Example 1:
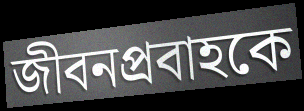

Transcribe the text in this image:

জীবনপ্রবাহকে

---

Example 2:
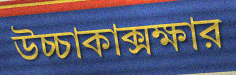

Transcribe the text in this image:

উচ্চাকাক্সক্ষার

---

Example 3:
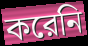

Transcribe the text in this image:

করেনি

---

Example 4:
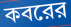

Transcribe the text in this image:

কবরের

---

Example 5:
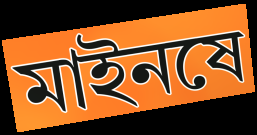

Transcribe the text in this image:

মাইনষে